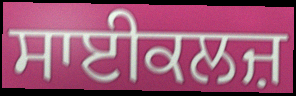
ਸਾਈਕਲਜ਼